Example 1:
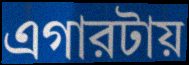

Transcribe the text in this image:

এগারটায়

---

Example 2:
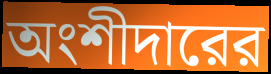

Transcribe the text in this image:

অংশীদারের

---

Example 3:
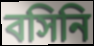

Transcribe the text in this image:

বসিনি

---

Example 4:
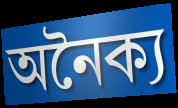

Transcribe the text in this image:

অনৈক্য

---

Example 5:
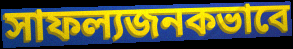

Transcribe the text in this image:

সাফল্যজনকভাবে